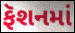
ફૅશનમાં